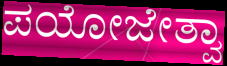
ಪಯೋಜೇತ್ವಾ